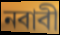
নবাবী